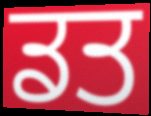
ਡਤ